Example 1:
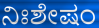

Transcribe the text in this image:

ನಿಃಶೇಷಂ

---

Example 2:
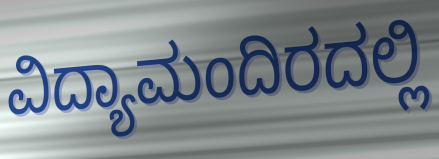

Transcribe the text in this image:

ವಿದ್ಯಾಮಂದಿರದಲ್ಲಿ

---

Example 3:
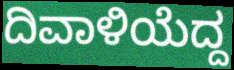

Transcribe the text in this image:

ದಿವಾಳಿಯೆದ್ದ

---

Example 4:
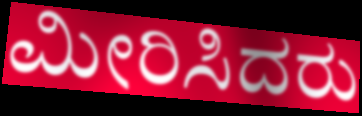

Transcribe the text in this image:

ಮೀರಿಸಿದರು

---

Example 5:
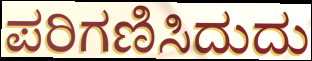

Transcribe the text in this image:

ಪರಿಗಣಿಸಿದುದು